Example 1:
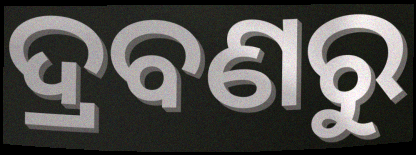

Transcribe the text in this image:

ଦ୍ରବଣରୁ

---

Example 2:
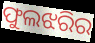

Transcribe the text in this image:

ଫୁଲଝରିର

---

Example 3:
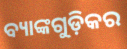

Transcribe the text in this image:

ବ୍ୟାଙ୍କଗୁଡ଼ିକର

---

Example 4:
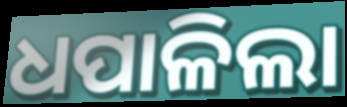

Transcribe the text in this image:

ଧପାଳିଲା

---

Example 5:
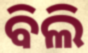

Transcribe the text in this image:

ବିଲି